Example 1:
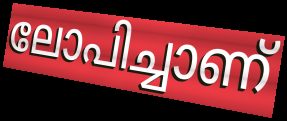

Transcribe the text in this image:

ലോപിച്ചാണ്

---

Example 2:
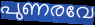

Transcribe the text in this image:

പുണരവേ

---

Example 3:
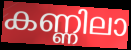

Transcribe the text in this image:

കണ്ണിലാ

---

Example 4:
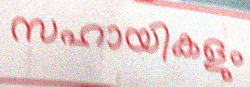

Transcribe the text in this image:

സഹായികളും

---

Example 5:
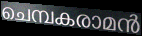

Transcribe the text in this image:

ചെമ്പകരാമൻ